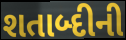
શતાબ્દીની